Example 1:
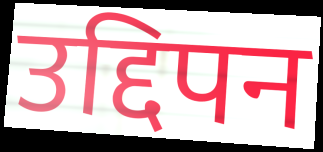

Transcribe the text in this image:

उद्दिपन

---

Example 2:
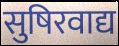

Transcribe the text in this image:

सुषिरवाद्य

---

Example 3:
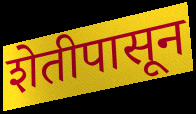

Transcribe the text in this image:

शेतीपासून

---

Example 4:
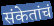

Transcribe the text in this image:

संकेतांचं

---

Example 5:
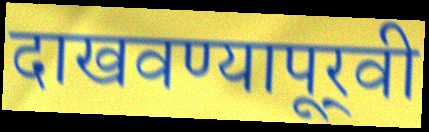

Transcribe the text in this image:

दाखवण्यापूर्वी